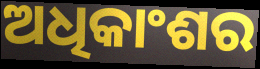
ଅଧିକାଂଶର